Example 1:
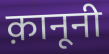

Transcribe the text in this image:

क़ानूनी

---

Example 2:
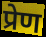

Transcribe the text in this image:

प्रेण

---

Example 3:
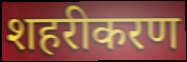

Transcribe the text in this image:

शहरीकरण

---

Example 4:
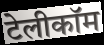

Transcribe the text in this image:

टेलीकॉम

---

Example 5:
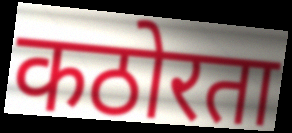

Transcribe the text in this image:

कठोरता